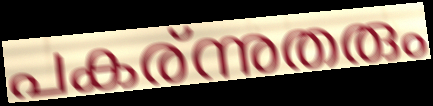
പകര്ന്നുതരും